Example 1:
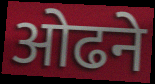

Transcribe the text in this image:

ओढने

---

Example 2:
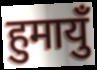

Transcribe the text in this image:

हुमायुँ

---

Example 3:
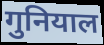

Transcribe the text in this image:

गुनियाल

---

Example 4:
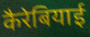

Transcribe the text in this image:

कैरेबियाई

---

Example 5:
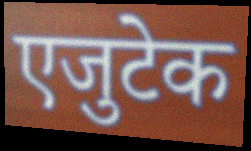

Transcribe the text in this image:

एजुटेक